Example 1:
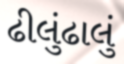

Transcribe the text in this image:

ઢીલુંઢાલું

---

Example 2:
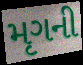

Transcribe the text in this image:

મૃગની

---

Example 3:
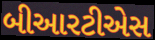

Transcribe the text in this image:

બીઆરટીએસ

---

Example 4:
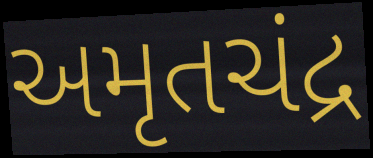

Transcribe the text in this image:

અમૃતચંદ્ર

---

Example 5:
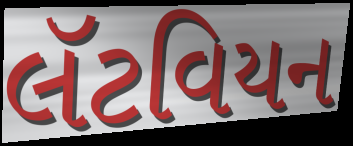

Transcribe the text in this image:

લૅટવિયન